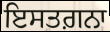
ਇਸਤਗ਼ਨਾ